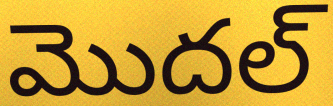
మొదల్